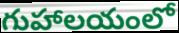
గుహాలయంలో